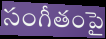
సంగీతంపై